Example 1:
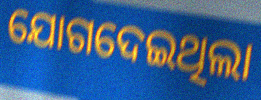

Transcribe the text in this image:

ଯୋଗଦେଇଥିଲା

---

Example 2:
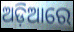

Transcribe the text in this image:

ଅଡ଼ିଆରେ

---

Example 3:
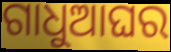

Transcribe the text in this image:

ଗାଧୁଆଘର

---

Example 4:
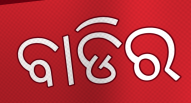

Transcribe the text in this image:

ବାଡିର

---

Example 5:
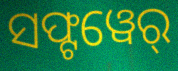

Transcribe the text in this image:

ସଫ୍ଟୱେର୍